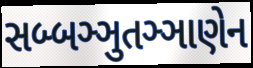
સબ્બઞ્ઞુતઞ્ઞાણેન